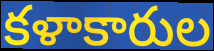
కళాకారుల